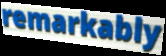
remarkably